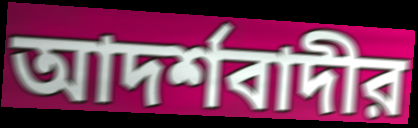
আদর্শবাদীর